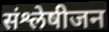
संश्लेषीजन